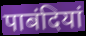
पाबंदियां